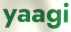
yaagi